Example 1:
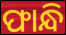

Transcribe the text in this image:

ଫାନ୍ଧି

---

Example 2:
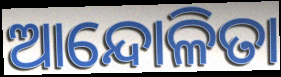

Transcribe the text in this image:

ଆନ୍ଦୋଳିତା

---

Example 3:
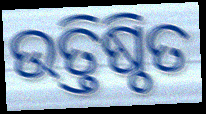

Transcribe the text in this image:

ଉତ୍ତିଷ୍ଠିତ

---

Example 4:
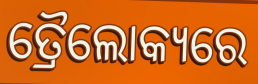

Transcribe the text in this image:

ତ୍ରୈଲୋକ୍ୟରେ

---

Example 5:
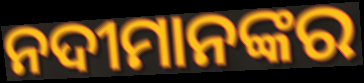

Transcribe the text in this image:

ନଦୀମାନଙ୍କର